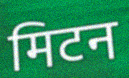
मिटन